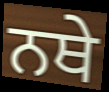
ਨਥੇ